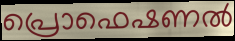
പ്രൊഫെഷണൽ